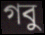
গবু